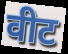
वीट